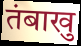
तंबाखु